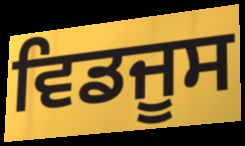
ਵਿਡਜੂਸ